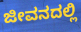
ಜೀವನದಲ್ಲಿ